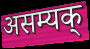
असम्यक्